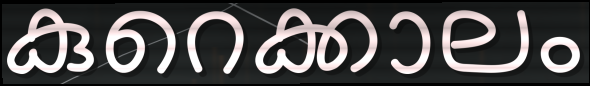
കുറെക്കാലം